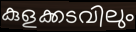
കുളക്കടവിലും